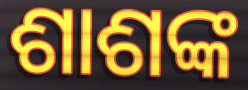
ଶାଶଙ୍କ